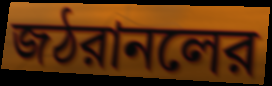
জঠরানলের